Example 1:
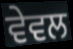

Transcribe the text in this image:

ਵੇਵਲ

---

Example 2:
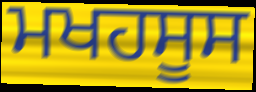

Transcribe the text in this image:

ਮਖਹਸੂਸ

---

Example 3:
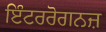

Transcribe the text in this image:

ਇੰਟਰਰੋਗਨਜ਼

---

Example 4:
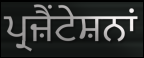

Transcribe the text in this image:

ਪ੍ਰਜ਼ੈਂਟੇਸ਼ਨਾਂ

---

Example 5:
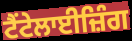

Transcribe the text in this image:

ਟੈਂਟੇਲਾਈਜ਼ਿੰਗ